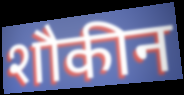
शौकीन